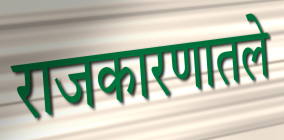
राजकारणातले